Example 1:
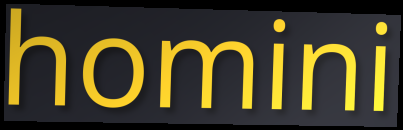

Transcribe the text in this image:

homini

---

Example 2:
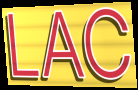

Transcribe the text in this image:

LAC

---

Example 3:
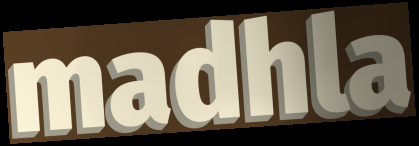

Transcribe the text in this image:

madhla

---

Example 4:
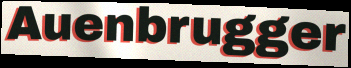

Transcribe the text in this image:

Auenbrugger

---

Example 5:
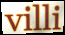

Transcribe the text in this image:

villi